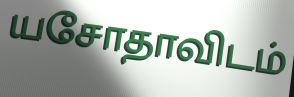
யசோதாவிடம்